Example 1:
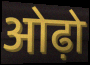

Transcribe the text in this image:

ओढ़ो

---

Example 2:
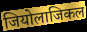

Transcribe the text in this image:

जियोलाजिकल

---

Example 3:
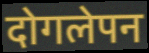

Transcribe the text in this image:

दोगलेपन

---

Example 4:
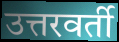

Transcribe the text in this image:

उत्तरवर्ती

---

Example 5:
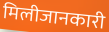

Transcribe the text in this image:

मिलीजानकारी